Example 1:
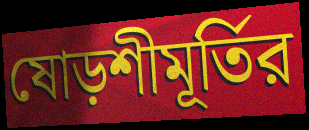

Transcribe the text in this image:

ষোড়শীমূর্তির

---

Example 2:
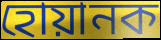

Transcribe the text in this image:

হোয়ানক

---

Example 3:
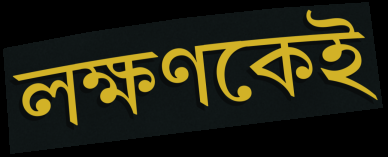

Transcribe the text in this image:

লক্ষণকেই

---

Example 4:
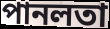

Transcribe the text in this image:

পানলতা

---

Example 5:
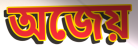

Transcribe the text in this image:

অজেয়